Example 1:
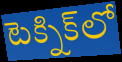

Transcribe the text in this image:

టెక్నిక్‌లో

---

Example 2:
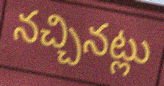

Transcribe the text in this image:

నచ్చినట్లు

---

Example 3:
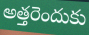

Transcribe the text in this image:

అత్తరెందుకు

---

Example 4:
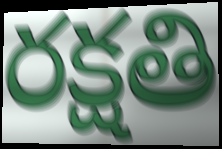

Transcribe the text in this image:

రక్షతి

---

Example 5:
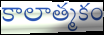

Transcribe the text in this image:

కాలాత్మకం